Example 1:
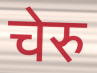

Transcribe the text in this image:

चेरु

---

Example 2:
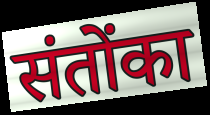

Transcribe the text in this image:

संतोंका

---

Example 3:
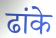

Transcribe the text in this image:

ढांके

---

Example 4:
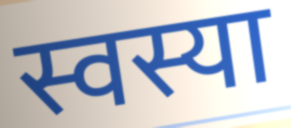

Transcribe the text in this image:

स्वस्या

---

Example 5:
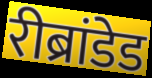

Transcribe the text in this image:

रीब्रांडेड